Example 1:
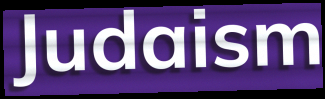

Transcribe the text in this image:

Judaism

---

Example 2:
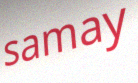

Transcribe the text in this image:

samay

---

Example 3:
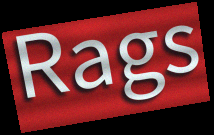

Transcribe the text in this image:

Rags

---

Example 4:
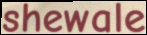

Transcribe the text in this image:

shewale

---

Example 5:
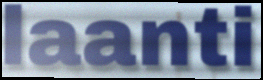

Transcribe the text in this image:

laanti